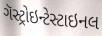
ગૅસ્ટ્રોઇન્ટેસ્ટાઇનલ